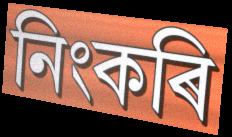
নিংকৰি